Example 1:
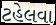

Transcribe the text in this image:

ટહેલવા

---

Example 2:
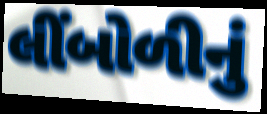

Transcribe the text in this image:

લીંબોળીનું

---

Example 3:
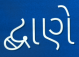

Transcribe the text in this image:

દ્બાણે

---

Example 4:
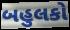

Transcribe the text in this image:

બહુલકો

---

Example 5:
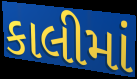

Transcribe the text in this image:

કાલીમાં